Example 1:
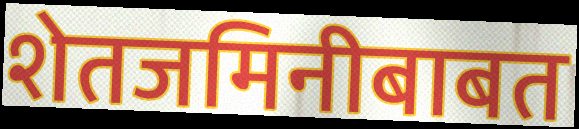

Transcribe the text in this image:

शेतजमिनीबाबत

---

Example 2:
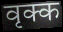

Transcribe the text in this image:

वृक्क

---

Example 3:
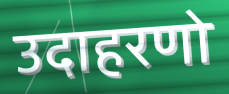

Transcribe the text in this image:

उदाहरणो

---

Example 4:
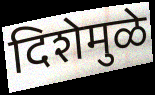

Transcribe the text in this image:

दिशेमुळे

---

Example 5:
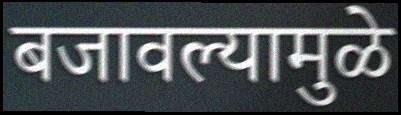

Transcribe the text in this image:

बजावल्यामुळे